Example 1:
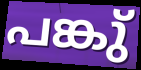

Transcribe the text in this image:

പങ്കു്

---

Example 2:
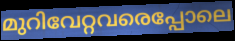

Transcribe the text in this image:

മുറിവേറ്റവരെപ്പോലെ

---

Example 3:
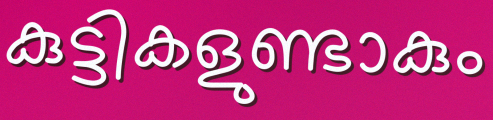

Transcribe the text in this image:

കുട്ടികളുണ്ടാകും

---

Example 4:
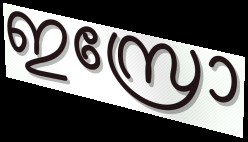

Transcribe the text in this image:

ഇസ്രോ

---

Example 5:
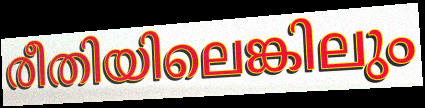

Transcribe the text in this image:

രീതിയിലെങ്കിലും